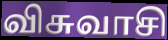
விசுவாசி